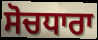
ਸੋਚਧਾਰਾ